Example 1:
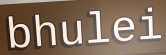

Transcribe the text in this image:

bhulei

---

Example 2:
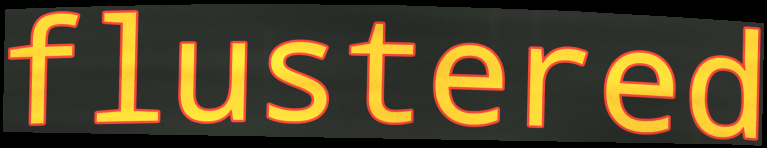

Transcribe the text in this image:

flustered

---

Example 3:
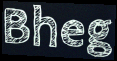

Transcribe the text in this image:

Bheg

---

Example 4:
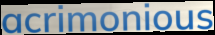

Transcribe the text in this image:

acrimonious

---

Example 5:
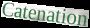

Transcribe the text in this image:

Catenation